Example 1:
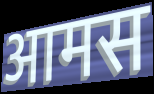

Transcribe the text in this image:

आमस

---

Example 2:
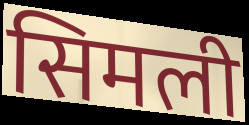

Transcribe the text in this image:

सिमली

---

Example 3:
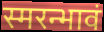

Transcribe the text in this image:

स्मरन्भावं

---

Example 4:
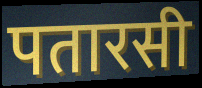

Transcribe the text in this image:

पतारसी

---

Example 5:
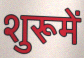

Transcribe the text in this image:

शुरूमें